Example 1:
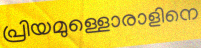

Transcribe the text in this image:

പ്രിയമുള്ളൊരാളിനെ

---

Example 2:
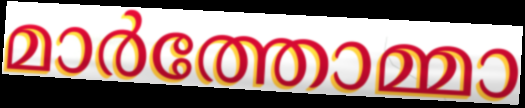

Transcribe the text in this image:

മാർത്തോമ്മാ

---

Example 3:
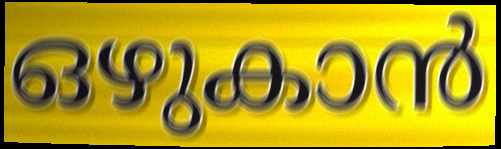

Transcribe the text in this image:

ഒഴുകാൻ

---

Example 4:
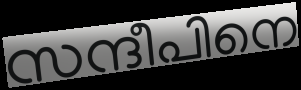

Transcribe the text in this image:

സന്ദീപിനെ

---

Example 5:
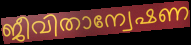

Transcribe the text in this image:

ജീവിതാന്വേഷണ